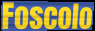
Foscolo